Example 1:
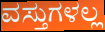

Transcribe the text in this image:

ವಸ್ತುಗಳಲ್ಲ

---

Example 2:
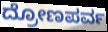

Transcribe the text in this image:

ದ್ರೋಣಪರ್ವ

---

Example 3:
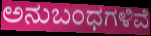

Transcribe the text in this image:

ಅನುಬಂಧಗಳಿವೆ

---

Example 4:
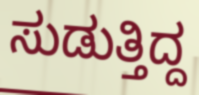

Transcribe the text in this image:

ಸುಡುತ್ತಿದ್ದ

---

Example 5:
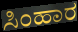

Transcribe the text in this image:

ಸಿಂಹಾರ